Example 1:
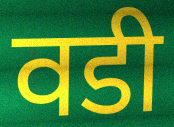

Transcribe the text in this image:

वडी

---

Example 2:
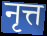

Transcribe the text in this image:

नृत्त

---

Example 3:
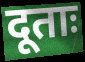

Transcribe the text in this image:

दूताः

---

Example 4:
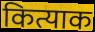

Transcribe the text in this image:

कित्याक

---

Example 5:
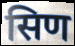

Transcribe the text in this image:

सिण